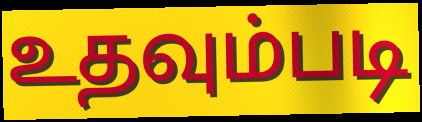
உதவும்படி